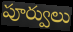
పూర్వులు